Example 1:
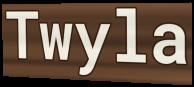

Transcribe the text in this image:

Twyla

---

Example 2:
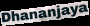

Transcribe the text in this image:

Dhananjaya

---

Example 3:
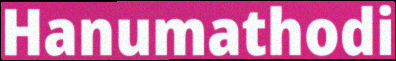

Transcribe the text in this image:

Hanumathodi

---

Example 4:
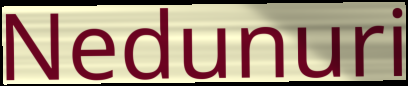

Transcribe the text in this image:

Nedunuri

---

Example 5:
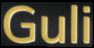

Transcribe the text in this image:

Guli